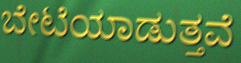
ಬೇಟೆಯಾಡುತ್ತವೆ